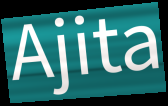
Ajita